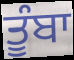
ਤੂੰਬਾ